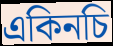
একিনচি